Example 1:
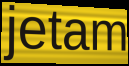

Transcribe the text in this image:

jetam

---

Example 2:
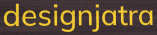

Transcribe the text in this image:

designjatra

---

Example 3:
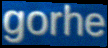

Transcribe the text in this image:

gorhe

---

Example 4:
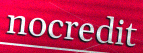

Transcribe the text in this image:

nocredit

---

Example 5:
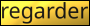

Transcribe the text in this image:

regarder